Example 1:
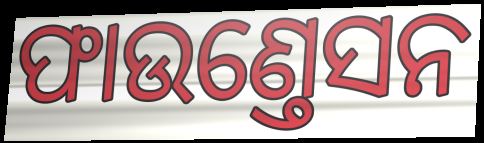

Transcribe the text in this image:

ଫାଉଣ୍ତେସନ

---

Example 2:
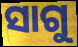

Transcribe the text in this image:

ସାଗୁ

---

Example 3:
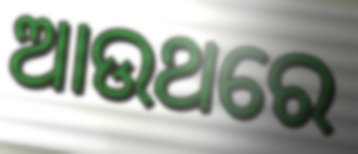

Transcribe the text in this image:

ଆଉଥରେ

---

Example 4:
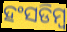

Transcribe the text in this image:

ହଂସଡିମ୍ବ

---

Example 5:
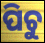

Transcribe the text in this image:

ପିଚୁ